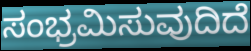
ಸಂಭ್ರಮಿಸುವುದಿದೆ